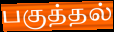
பகுத்தல்